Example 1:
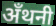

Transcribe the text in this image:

अँथनी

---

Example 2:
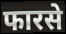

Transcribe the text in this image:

फारसे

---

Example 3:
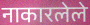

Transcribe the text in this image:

नाकारलेले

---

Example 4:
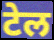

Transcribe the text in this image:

टेल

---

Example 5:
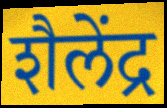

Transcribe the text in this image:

शैलेंद्र